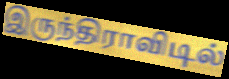
இருந்திராவிடில்